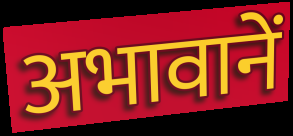
अभावानें